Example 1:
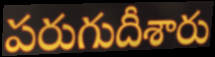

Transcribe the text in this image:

పరుగుదీశారు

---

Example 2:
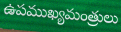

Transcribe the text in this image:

ఉపముఖ్యమంత్రులు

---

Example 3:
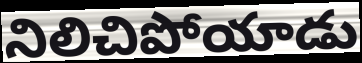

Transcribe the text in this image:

నిలిచిపోయాడు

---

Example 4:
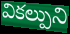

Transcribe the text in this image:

వికల్పుని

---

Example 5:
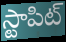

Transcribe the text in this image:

స్టాపిట్